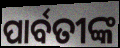
ପାର୍ବତୀଙ୍କ